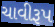
ચાવીરૂપ